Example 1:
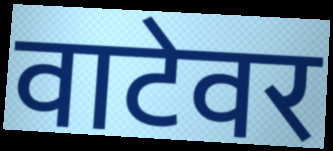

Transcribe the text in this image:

वाटेवर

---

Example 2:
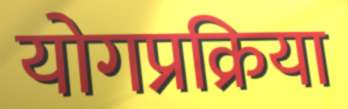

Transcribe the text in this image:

योगप्रक्रिया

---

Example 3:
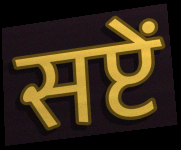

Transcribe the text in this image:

सप्टें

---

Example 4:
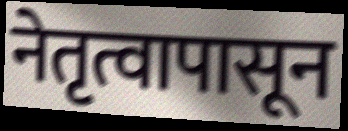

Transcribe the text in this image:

नेतृत्वापासून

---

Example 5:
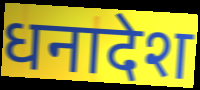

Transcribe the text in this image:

धनादेश